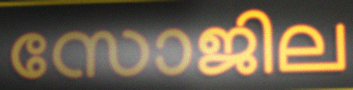
സോജില